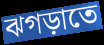
ঝগড়াতে